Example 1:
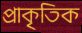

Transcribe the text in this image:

প্রাকৃতিক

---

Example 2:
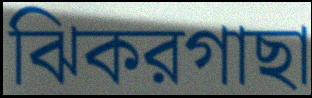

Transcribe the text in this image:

ঝিকরগাছা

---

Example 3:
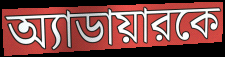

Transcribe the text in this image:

অ্যাডায়ারকে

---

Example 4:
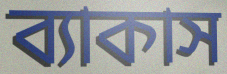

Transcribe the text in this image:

ব্যাকাস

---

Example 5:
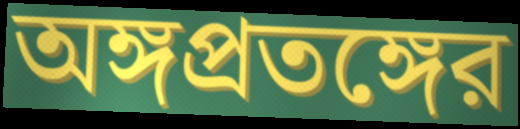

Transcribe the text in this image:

অঙ্গপ্রতঙ্গের